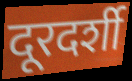
दूरदर्शी